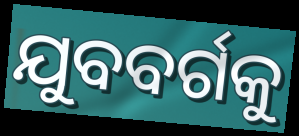
ଯୁବବର୍ଗକୁ